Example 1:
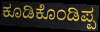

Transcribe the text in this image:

ಕೂಡಿಕೊಂಡಿಪ್ಪ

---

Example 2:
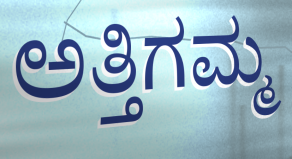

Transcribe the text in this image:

ಅತ್ತಿಗಮ್ಮ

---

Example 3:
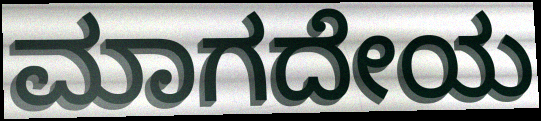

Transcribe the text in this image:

ಮಾಗದೇಯ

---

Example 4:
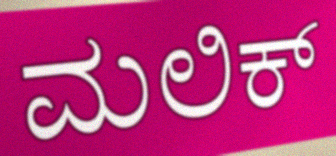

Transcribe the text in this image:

ಮಲಿಕ್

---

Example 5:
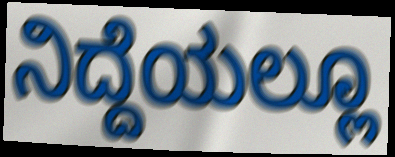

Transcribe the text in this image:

ನಿದ್ದೆಯಲ್ಲೂ